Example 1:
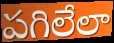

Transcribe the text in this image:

పగిలేలా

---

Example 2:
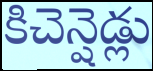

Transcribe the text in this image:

కిచెన్షెడ్లు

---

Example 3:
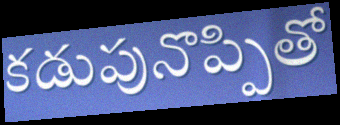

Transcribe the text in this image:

కడుపునొప్పితో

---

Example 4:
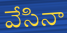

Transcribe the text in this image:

వేసినా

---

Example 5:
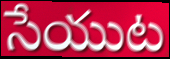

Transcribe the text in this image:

సేయుట